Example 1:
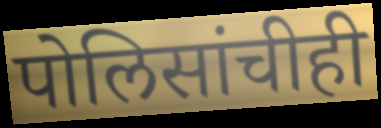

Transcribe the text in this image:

पोलिसांचीही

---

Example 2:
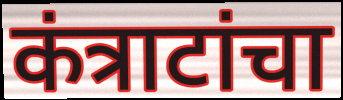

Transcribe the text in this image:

कंत्राटांचा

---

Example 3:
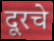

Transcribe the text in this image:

दूरचे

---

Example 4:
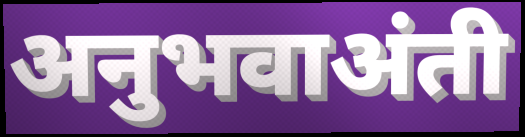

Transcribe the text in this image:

अनुभवाअंती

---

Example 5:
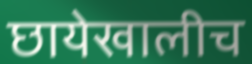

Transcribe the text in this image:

छायेखालीच